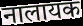
नालायक